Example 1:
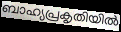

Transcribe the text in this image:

ബാഹ്യപ്രകൃതിയിൽ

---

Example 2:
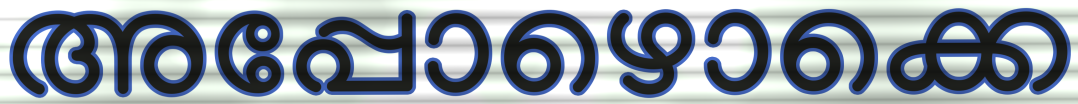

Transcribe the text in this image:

അപ്പോഴൊക്കെ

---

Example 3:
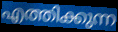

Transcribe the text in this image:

എത്തിക്കുന്ന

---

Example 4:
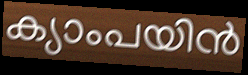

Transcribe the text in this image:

ക്യാംപയിൻ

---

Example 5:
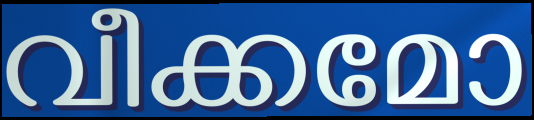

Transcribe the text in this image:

വീക്കമോ